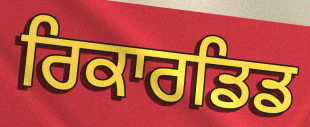
ਰਿਕਾਰਡਿਡ